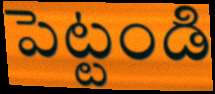
పెట్టండి